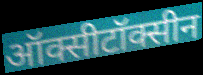
ऑक्सीटॉक्सीन